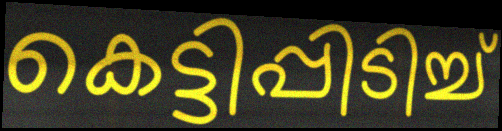
കെട്ടിപ്പിടിച്ച്